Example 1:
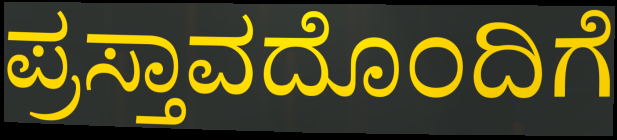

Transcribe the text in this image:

ಪ್ರಸ್ತಾವದೊಂದಿಗೆ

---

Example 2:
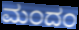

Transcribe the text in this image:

ಮಂದಂ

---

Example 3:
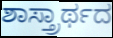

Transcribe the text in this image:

ಶಾಸ್ತ್ರಾರ್ಥದ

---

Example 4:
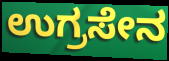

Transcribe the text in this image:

ಉಗ್ರಸೇನ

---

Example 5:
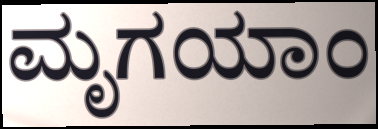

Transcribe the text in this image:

ಮೃಗಯಾಂ